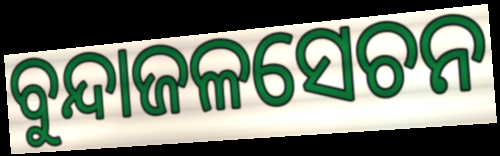
ବୁନ୍ଦାଜଳସେଚନ